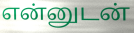
என்னுடன்